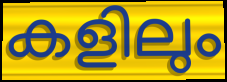
കളിലും